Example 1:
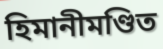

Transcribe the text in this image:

হিমানীমণ্ডিত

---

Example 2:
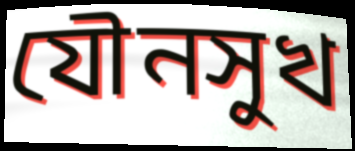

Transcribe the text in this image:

যৌনসুখ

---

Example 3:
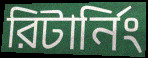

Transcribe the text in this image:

রিটার্নিং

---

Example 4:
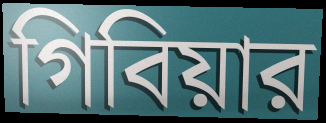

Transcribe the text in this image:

গিবিয়ার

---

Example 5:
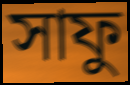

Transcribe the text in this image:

সাফু